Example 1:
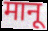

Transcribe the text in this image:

मानू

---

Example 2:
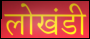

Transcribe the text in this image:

लोखंडी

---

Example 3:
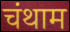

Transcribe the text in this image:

चंथाम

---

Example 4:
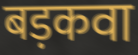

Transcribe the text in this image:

बड़कवा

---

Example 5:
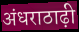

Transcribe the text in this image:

अंधराठाढ़ी